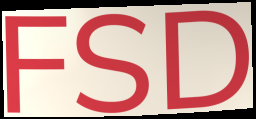
FSD